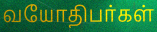
வயோதிபர்கள்